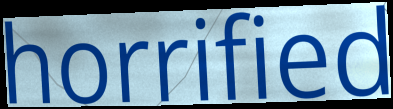
horrified